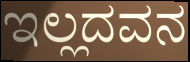
ಇಲ್ಲದವನ